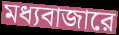
মধ্যবাজারে